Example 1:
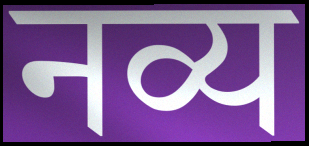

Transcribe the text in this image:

नव्य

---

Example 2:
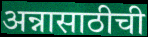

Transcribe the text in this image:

अन्नासाठीची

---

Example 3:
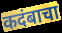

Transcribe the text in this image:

कदंबाचा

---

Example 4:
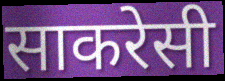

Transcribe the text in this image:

साकरेसी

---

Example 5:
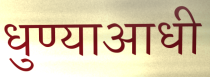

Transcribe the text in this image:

धुण्याआधी